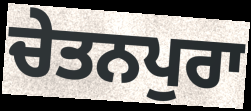
ਚੇਤਨਪੁਰਾ